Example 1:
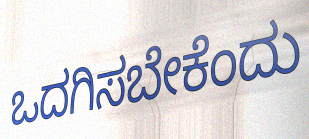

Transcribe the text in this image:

ಒದಗಿಸಬೇಕೆಂದು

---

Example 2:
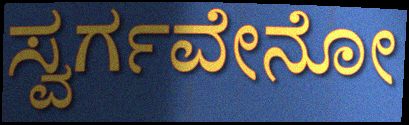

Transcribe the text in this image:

ಸ್ವರ್ಗವೇನೋ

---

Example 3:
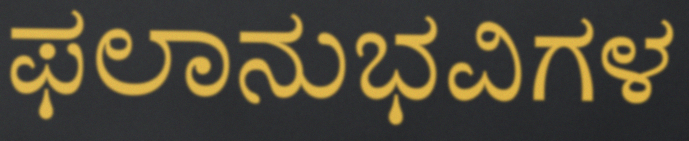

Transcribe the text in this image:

ಫಲಾನುಭವಿಗಳ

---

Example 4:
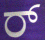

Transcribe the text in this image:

ರ್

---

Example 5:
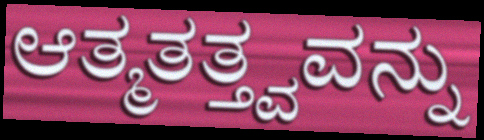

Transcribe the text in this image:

ಆತ್ಮತತ್ತ್ವವನ್ನು